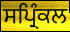
ਸਪ੍ਰਿੰਕਲ